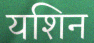
यशिन